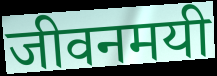
जीवनमयी